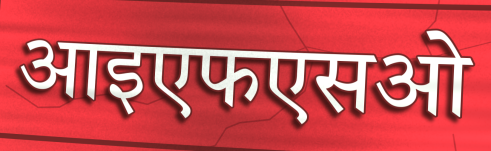
आइएफएसओ